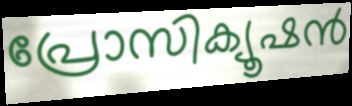
പ്രോസിക്യൂഷൻ